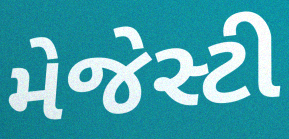
મેજેસ્ટી